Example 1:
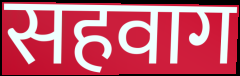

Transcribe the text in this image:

सहवाग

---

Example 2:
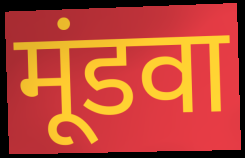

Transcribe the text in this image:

मूंडवा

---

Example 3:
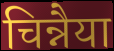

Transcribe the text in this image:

चिन्नैया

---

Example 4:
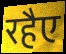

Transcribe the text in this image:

रहैए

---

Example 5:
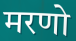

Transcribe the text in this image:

मरणो